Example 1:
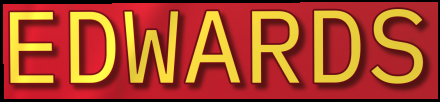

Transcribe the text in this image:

EDWARDS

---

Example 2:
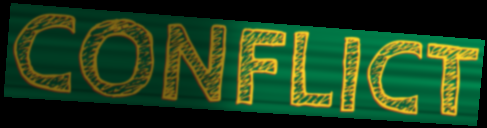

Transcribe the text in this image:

CONFLICT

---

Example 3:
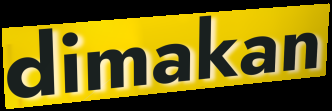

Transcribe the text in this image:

dimakan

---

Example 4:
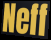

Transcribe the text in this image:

Neff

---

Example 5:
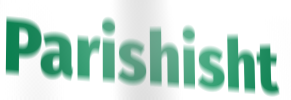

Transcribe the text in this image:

Parishisht